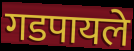
गडपायले